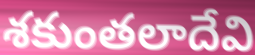
శకుంతలాదేవి